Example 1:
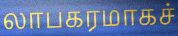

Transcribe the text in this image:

லாபகரமாகச்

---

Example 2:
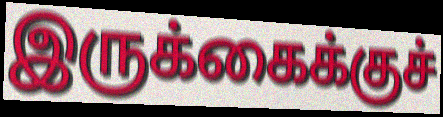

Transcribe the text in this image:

இருக்கைக்குச்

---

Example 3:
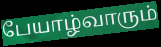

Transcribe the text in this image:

பேயாழ்வாரும்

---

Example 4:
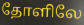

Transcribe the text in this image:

தோளிலே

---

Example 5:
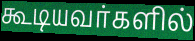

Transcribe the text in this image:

கூடியவர்களில்